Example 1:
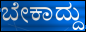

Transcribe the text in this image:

ಬೇಕಾದ್ದು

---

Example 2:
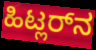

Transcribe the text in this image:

ಹಿಟ್ಲರ್‌ನ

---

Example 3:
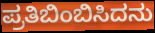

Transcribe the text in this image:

ಪ್ರತಿಬಿಂಬಿಸಿದನು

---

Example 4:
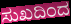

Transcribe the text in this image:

ಸುಖದಿಂದ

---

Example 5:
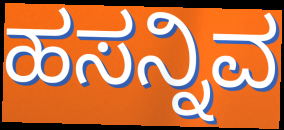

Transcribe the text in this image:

ಹಸನ್ನಿವ